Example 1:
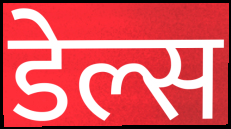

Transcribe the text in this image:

डेल्स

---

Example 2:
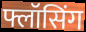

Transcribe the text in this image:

फ्लॉसिंग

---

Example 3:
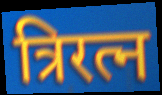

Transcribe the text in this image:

त्रिरत्न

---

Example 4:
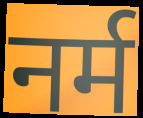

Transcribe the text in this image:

नर्म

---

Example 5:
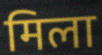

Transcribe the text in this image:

मिला